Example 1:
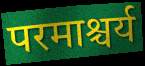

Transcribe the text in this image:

परमाश्चर्य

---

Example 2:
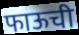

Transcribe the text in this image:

फाऊची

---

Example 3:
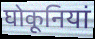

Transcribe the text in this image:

घोकूनियां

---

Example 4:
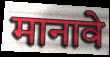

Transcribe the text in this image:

मानावे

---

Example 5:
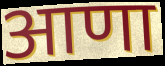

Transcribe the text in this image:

आणा